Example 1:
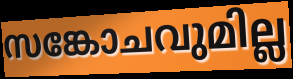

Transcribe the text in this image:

സങ്കോചവുമില്ല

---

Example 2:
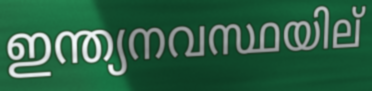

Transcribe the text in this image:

ഇന്ത്യനവസ്ഥയില്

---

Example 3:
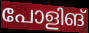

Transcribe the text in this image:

പോളിങ്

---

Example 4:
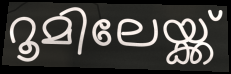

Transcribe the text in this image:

റൂമിലേയ്ക്ക്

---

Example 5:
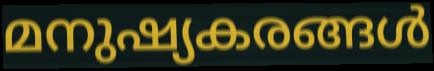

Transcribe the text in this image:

മനുഷ്യകരങ്ങൾ